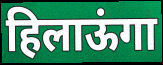
हिलाऊंगा